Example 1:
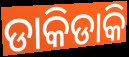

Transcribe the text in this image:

ଡାକିଡାକି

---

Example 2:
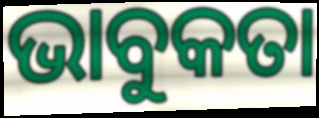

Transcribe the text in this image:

ଭାବୁକତା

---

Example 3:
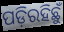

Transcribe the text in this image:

ପଡ଼ିରହିଛୁଁ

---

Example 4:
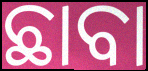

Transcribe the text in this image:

ଛାବା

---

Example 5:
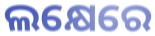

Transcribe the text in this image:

ଲକ୍ଷେରେ